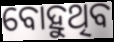
ବୋହୁଥିବ